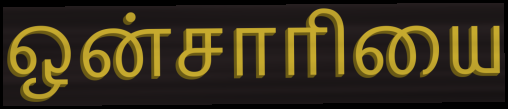
ஒன்சாரியை